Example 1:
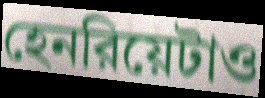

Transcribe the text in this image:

হেনরিয়েটাও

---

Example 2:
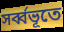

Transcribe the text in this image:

সর্ব্বভূতে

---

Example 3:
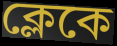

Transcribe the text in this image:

ক্লেকে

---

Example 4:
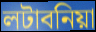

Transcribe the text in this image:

লটাবনিয়া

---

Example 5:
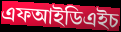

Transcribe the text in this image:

এফআইডিএইচ